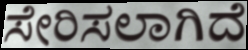
ಸೇರಿಸಲಾಗಿದೆ